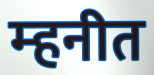
म्हनीत